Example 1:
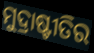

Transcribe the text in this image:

ମୁଦ୍ରାଷ୍ଟୀତିର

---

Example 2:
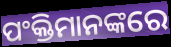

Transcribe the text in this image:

ପଂକ୍ତିମାନଙ୍କରେ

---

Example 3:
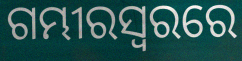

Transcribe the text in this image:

ଗମ୍ଭୀରସ୍ୱରରେ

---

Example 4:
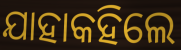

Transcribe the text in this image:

ଯାହାକହିଲେ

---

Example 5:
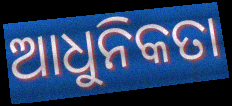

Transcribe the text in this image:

ଆଧୁନିକତା